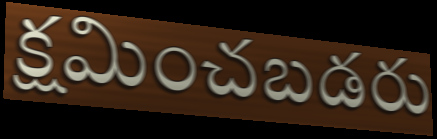
క్షమించబడరు